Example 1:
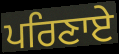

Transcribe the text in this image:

ਪਰਿਣਾਏ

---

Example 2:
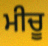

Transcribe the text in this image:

ਮੀਚੂ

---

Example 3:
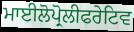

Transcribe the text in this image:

ਮਾਈਲੋਪ੍ਰੋਲੀਫਰੇਟਿਵ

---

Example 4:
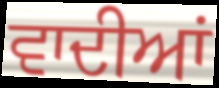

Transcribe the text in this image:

ਵਾਦੀਆਂ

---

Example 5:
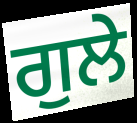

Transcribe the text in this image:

ਗੁਲੇ